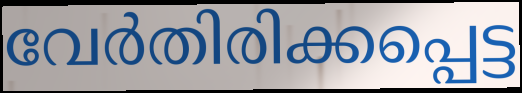
വേർതിരിക്കപ്പെട്ട